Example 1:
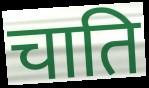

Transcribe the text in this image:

चाति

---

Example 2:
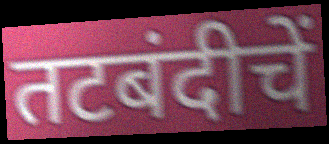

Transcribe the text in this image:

तटबंदीचें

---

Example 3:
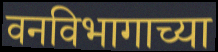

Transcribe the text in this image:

वनविभागाच्या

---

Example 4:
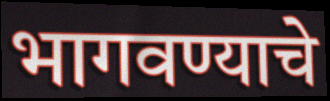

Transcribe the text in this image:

भागवण्याचे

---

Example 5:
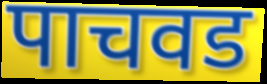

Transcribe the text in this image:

पाचवड